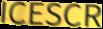
ICESCR